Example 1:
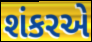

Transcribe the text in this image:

શંકરએ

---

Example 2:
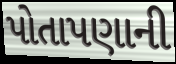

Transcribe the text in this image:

પોતાપણાની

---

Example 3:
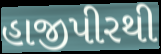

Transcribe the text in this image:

હાજીપીરથી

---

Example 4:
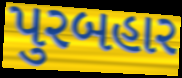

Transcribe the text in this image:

પુરબહાર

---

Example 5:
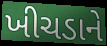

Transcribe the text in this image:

ખીચડાને